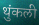
थुंकली